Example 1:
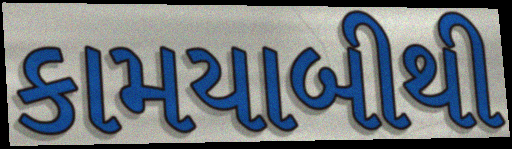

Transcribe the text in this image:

કામયાબીથી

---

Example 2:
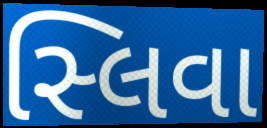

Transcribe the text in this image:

સ્લિવા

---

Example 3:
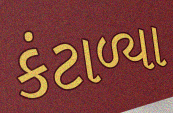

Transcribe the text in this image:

કંટાળ્યા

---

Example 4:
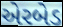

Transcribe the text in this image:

એરબેડ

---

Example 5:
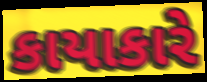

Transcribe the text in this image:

કાયાકારે